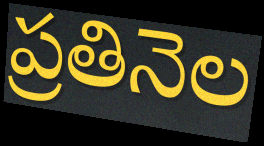
ప్రతినెల